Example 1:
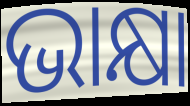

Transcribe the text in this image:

ଭାକ୍ଷା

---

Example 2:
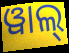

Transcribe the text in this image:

ୱାଲ୍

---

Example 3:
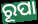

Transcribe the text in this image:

ରୂପା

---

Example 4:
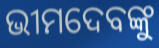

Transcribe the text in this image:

ଭୀମଦେବଙ୍କୁ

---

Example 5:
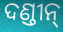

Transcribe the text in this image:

ଦଣ୍ଡୀନ୍